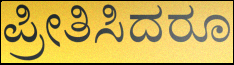
ಪ್ರೀತಿಸಿದರೂ